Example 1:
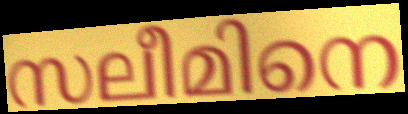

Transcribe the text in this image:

സലീമിനെ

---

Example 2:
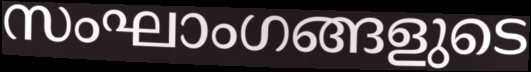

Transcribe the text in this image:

സംഘാംഗങ്ങളുടെ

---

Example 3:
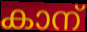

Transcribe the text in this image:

കാന്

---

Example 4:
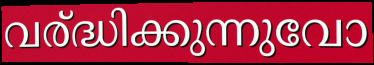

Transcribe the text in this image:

വര്ദ്ധിക്കുന്നുവോ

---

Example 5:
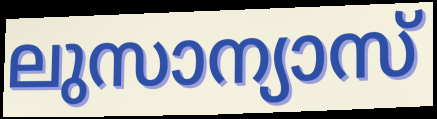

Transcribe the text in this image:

ലുസാന്യാസ്